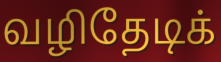
வழிதேடிக்